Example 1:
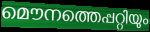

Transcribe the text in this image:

മൌനത്തെപ്പറ്റിയും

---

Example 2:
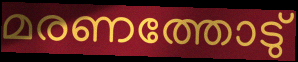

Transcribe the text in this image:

മരണത്തോടു്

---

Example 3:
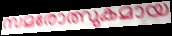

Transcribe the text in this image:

സമരോത്സുകമായ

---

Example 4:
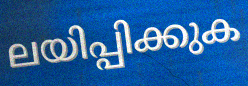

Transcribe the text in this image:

ലയിപ്പിക്കുക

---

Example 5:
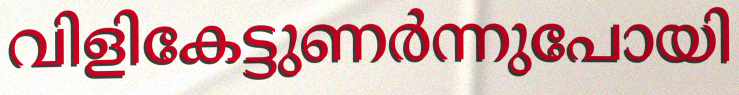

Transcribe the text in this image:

വിളികേട്ടുണർന്നുപോയി